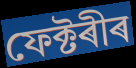
ফেক্টৰীৰ